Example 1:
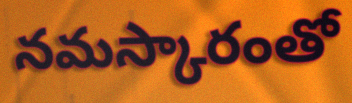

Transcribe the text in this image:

నమస్కారంతో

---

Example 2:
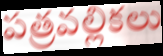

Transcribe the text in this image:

పత్రవల్లికలు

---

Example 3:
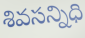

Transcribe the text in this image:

శివసన్నిధి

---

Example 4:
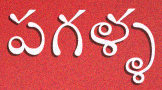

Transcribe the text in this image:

పగళ్ళ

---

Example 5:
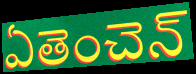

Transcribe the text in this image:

ఏతెంచెన్